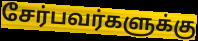
சேர்பவர்களுக்கு